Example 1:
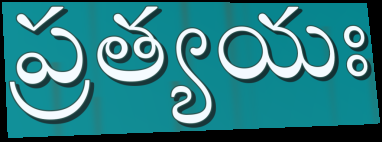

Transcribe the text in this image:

ప్రత్యయః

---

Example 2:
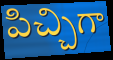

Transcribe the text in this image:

పిచ్చిగా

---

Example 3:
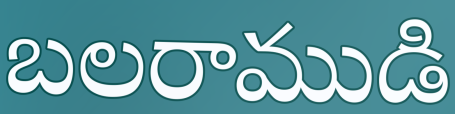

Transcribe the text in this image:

బలరాముడి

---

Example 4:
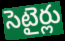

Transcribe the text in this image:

సెటైర్లు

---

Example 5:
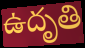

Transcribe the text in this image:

ఉదృతి